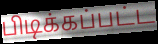
பிடிக்கப்பட்ட